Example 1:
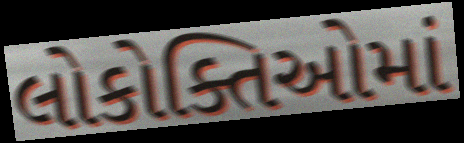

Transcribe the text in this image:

લોકોક્તિઓમાં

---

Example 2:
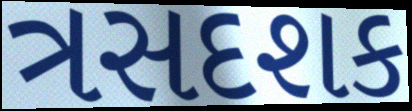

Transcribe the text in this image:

ત્રસદશક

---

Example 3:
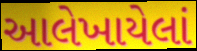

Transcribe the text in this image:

આલેખાયેલાં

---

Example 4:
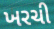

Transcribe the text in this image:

ખરચી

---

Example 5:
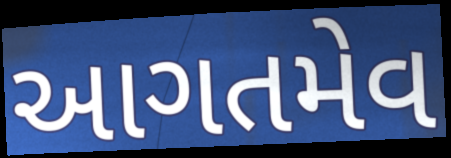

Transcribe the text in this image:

આગતમેવ